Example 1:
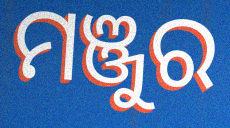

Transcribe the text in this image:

ମଞ୍ଜୁର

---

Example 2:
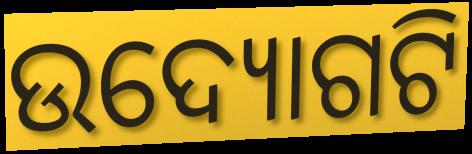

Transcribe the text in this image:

ଉଦ୍ୟୋଗଟି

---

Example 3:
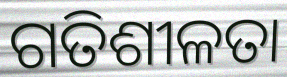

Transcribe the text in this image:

ଗତିଶୀଳତା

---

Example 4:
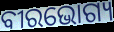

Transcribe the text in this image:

ବୀରଭୋଗ୍ୟ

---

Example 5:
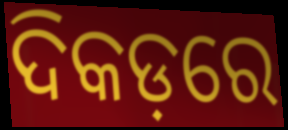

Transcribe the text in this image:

ଦିକଡ଼ରେ